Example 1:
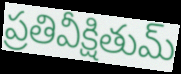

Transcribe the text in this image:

ప్రతివీక్షితుమ్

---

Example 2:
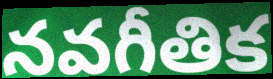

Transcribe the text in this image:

నవగీతిక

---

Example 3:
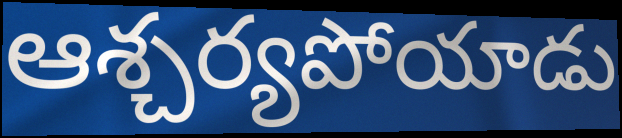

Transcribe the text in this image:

ఆశ్చర్యపోయాడు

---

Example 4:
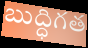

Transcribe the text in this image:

బుద్ధిగత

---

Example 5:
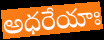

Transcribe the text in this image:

అధరేయాః